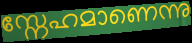
സ്നേഹമാണെന്നു